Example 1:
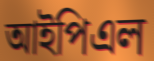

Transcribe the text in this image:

আইপিএল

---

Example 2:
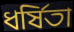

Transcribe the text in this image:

ধৰ্ষিতা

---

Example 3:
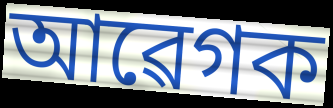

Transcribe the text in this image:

আৱেগক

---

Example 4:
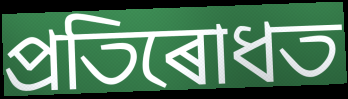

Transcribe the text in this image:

প্ৰতিৰোধত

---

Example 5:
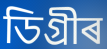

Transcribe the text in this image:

ডিগ্ৰীৰ